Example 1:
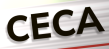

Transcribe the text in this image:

CECA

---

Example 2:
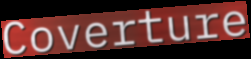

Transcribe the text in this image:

Coverture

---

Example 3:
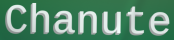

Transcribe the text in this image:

Chanute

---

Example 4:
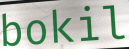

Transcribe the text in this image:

bokil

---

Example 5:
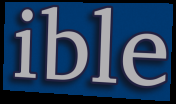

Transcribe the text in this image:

ible